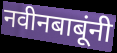
नवीनबाबूंनी